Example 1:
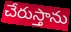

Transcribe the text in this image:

చేరుస్తాను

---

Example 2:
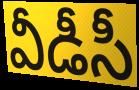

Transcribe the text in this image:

వీడీసీ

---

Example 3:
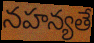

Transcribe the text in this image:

నహన్యతే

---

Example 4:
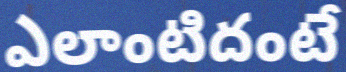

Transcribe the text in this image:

ఎలాంటిదంటే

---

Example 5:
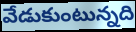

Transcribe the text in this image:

వేడుకుంటున్నది